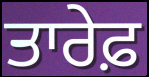
ਤਾਰੇਫ਼